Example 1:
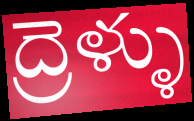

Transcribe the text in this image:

ద్రెళ్ళు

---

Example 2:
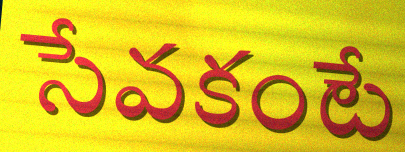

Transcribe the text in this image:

సేవకంటే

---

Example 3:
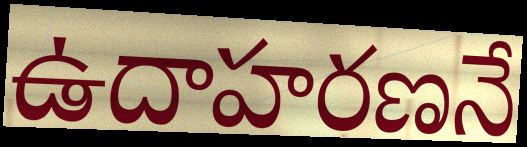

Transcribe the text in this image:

ఉదాహరణనే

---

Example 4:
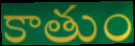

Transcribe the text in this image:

కాతుం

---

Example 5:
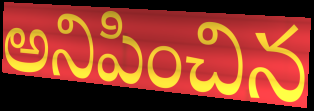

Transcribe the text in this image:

అనిపించిన